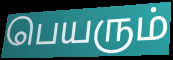
பெயரும்